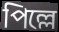
পিল্লে